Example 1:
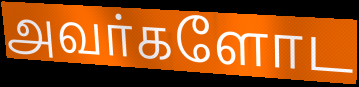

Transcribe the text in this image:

அவர்களோட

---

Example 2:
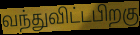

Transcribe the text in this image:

வந்துவிட்டபிறகு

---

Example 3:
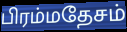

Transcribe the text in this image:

பிரம்மதேசம்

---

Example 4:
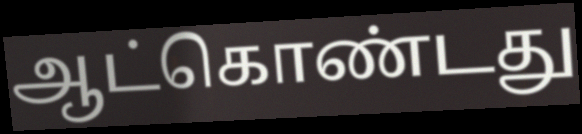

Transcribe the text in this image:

ஆட்கொண்டது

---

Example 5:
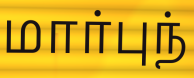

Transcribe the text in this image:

மார்புந்